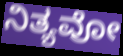
ನಿತ್ಯವೋ